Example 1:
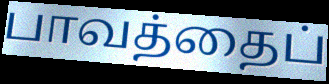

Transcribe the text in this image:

பாவத்தைப்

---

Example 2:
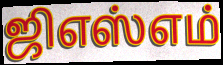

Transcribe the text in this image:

ஜிஎஸ்எம்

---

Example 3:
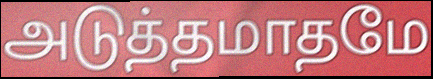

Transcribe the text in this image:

அடுத்தமாதமே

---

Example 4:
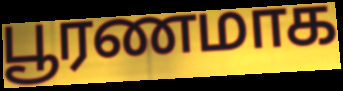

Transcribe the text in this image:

பூரணமாக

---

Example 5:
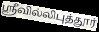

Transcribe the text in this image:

ஸ்ரீவில்லிபுத்தூர்